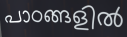
പാഠങ്ങളിൽ